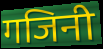
गजिनी